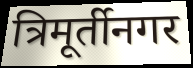
त्रिमूर्तीनगर